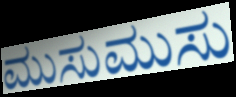
ಮುಸುಮುಸು